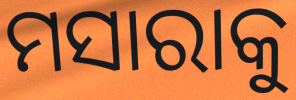
ମସାରାକୁ